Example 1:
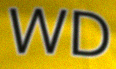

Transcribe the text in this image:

WD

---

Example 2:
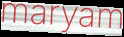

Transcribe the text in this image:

maryam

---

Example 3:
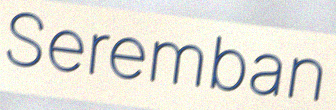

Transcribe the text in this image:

Seremban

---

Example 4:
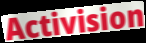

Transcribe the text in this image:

Activision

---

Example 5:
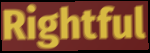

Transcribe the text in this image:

Rightful